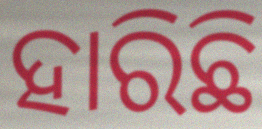
ହାରିଛି